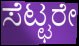
ಸೆಟ್ಟರೇ